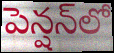
పెన్షన్‌లో